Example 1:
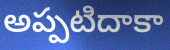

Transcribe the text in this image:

అప్పటిదాకా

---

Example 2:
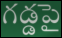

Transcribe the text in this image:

గడ్డపై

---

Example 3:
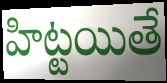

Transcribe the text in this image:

హిట్టయితే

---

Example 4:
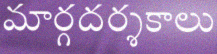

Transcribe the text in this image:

మార్గదర్శకాలు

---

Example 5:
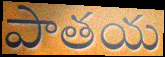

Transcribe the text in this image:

పాతయ